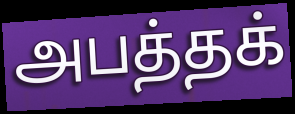
அபத்தக்